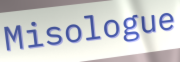
Misologue